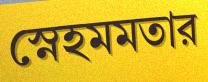
স্নেহমমতার